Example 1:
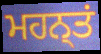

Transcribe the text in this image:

ਮਹਨ੍ਤਂ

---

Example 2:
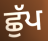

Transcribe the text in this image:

ਛੁੱਪ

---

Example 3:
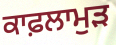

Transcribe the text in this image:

ਕਾਫ਼ਲਾਮੁੜ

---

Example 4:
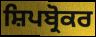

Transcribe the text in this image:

ਸ਼ਿਪਬ੍ਰੋਕਰ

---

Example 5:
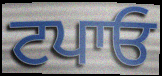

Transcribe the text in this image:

ਟਪਾਓ